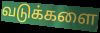
வடுக்களை